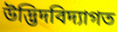
উদ্ভিদবিদ্যাগত